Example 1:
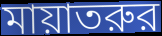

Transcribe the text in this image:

মায়াতরুর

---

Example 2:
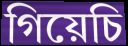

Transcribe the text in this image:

গিয়েচি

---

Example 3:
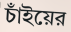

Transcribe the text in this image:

চাঁইয়ের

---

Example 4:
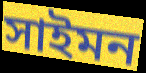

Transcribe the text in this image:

সাইমন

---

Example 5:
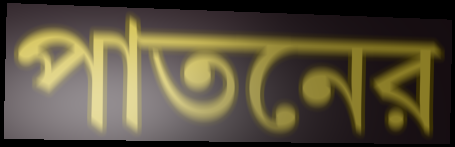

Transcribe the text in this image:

পাতনের